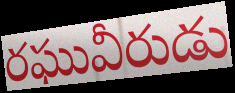
రఘువీరుడు